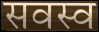
सवस्व